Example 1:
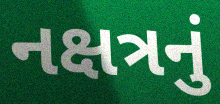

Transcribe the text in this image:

નક્ષત્રનું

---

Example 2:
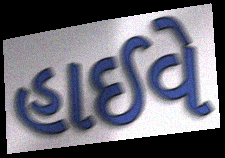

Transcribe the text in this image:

હાઈવે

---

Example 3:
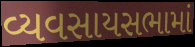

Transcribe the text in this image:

વ્યવસાયસભામાં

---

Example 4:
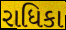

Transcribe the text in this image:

રાધિકા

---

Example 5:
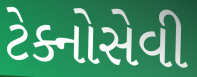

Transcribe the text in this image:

ટેક્નોસેવી